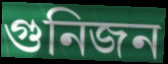
গুনিজন